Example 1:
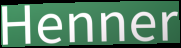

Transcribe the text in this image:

Henner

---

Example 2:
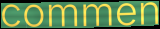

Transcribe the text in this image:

commen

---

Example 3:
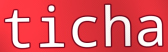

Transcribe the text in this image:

ticha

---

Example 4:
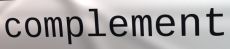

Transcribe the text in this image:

complement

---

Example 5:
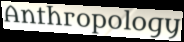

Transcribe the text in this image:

Anthropology